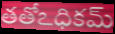
తతోఽధికమ్